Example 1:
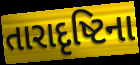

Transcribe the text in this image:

તારાદૃષ્ટિના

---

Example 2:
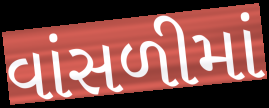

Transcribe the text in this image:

વાંસળીમાં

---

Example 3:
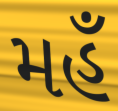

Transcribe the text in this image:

મહઁ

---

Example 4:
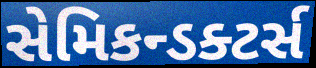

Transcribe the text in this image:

સેમિકન્ડક્ટર્સ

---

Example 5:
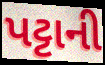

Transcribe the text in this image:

પટ્ટાની